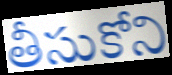
తీసుకోని